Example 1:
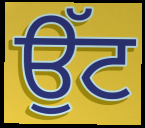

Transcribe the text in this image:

ਉੱਟ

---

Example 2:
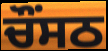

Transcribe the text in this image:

ਚੌਂਸਠ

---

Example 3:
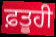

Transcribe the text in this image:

ਫ਼ਤੂਹੀ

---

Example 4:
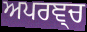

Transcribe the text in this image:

ਅਪਰਞ੍ਚ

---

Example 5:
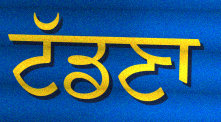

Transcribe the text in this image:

ਟੱਡਣਾ